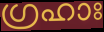
ഗ്രഹാഃ